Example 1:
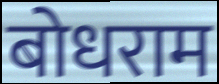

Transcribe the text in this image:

बोधराम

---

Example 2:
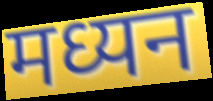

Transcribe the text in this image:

मध्यन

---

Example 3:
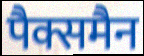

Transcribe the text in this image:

पैक्समैन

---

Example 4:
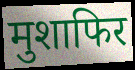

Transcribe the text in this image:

मुशाफिर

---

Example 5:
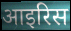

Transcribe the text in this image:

आइरिस